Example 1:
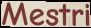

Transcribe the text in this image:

Mestri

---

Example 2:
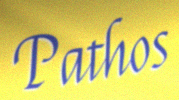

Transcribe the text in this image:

Pathos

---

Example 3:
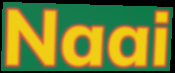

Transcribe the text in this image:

Naai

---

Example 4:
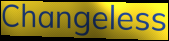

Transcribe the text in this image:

Changeless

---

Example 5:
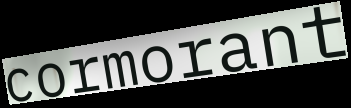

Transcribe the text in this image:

cormorant